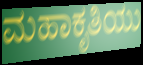
ಮಹಾಕೃತಿಯು